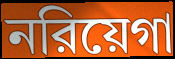
নরিয়েগা